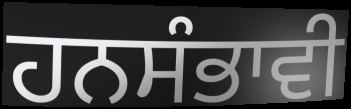
ਹਨਸੰਭਾਵੀ